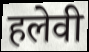
हलेवी